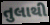
તુલાથી